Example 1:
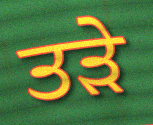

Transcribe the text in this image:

ਤੜੇ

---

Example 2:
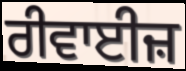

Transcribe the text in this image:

ਰੀਵਾਈਜ਼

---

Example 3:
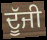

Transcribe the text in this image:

ਦੂੱਜੀ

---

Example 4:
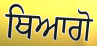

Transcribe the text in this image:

ਥਿਆਗੋ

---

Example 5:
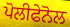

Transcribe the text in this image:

ਪੋਲੀਫੇਨੋਲ